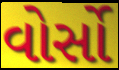
વોર્સો